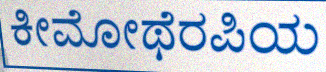
ಕೀಮೋಥೆರಪಿಯ